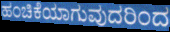
ಹಂಚಿಕೆಯಾಗುವುದರಿಂದ